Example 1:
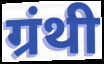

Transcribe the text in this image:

ग्रंथी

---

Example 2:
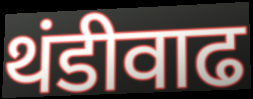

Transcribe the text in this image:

थंडीवाढ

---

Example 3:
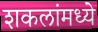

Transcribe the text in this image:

शकलांमध्ये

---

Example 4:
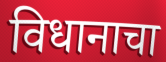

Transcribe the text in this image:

विधानाचा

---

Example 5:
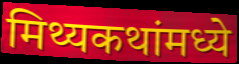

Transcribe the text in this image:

मिथ्यकथांमध्ये